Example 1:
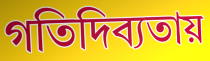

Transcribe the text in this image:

গতিদিব্যতায়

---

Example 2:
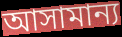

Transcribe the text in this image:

আসামান্য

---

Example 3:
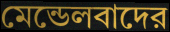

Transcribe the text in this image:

মেন্ডেলবাদের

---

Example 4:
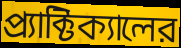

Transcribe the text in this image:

প্র্যাক্টিক্যালের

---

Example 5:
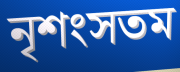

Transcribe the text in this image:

নৃশংসতম